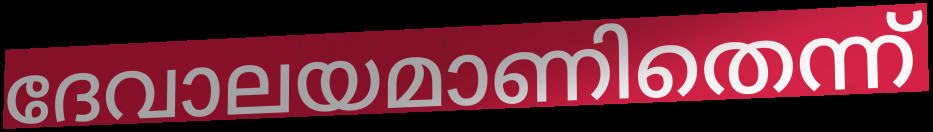
ദേവാലയമാണിതെന്ന്